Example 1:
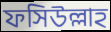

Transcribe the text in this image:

ফসিউল্লাহ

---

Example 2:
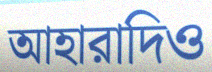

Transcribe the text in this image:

আহারাদিও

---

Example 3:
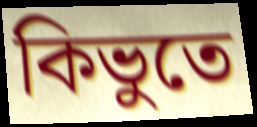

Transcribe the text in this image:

কিভুতে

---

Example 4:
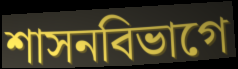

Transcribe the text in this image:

শাসনবিভাগে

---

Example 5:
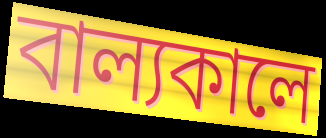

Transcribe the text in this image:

বাল্যকালে